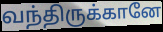
வந்திருக்கானே